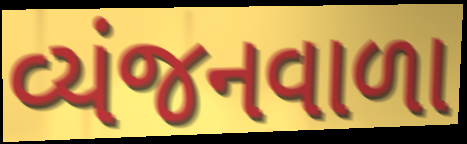
વ્યંજનવાળા